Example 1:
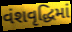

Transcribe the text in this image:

વંશવૃદ્ધિમાં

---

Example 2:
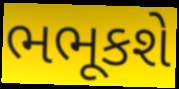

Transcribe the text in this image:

ભભૂકશે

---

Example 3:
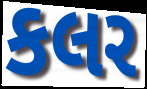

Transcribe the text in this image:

કલર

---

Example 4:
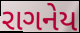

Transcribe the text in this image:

રાગનેય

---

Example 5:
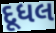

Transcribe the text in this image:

દૂધલ